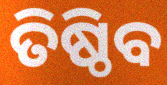
ତିଷ୍ଠିବ